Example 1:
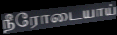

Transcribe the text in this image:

நீரோடையாய்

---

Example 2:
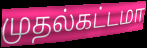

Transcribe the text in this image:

முதல்கட்டமா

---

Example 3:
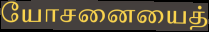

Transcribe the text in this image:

யோசனையைத்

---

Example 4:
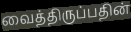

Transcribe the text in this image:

வைத்திருப்பதின்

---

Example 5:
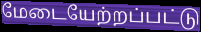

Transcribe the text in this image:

மேடையேற்றப்பட்டு